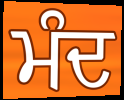
ਮੰਦ